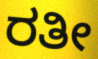
ರತೀ